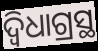
ଦ୍ବିଧାଗ୍ରସ୍ଥ